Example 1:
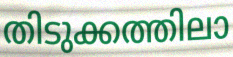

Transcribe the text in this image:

തിടുക്കത്തിലാ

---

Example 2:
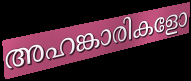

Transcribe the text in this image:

അഹങ്കാരികളോ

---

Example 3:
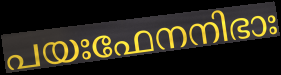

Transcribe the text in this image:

പയഃഫേനനിഭാഃ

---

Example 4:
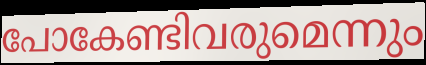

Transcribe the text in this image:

പോകേണ്ടിവരുമെന്നും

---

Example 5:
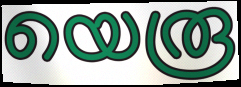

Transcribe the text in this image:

യെരൂ